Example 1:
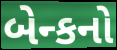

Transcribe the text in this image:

બેન્કનો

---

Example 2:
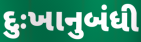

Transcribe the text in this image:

દુઃખાનુબંધી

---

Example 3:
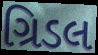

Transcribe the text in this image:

ગ્રિડલ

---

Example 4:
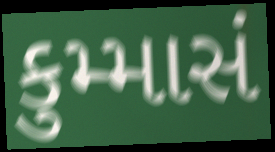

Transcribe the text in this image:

કુમ્માસં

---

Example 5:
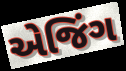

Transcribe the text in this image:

એજિંગ